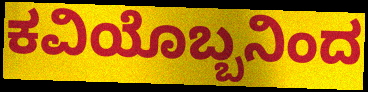
ಕವಿಯೊಬ್ಬನಿಂದ